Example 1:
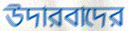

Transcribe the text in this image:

উদারবাদের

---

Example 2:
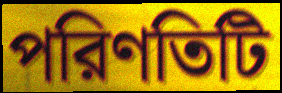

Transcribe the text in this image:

পরিণতিটি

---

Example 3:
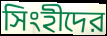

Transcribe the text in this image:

সিংহীদের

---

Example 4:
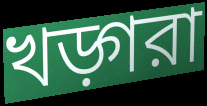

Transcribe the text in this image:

খড়্গরা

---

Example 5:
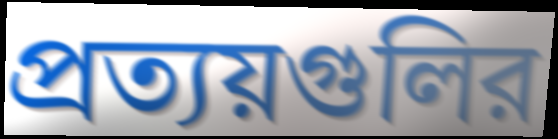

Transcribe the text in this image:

প্রত্যয়গুলির